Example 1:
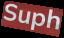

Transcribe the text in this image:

Suph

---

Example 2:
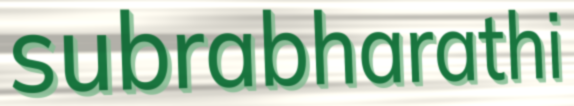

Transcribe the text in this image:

subrabharathi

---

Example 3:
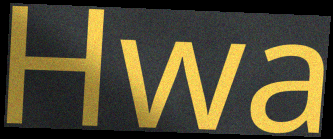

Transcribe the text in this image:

Hwa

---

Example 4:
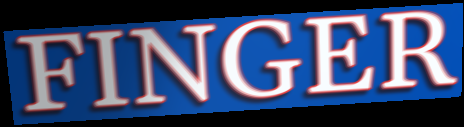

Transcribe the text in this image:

FINGER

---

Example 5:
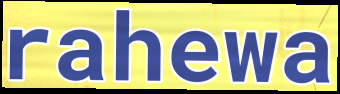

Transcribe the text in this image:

rahewa